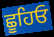
ਛੂਹਿਓ